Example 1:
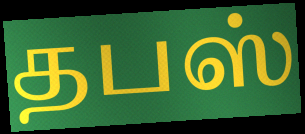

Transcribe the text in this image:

தபஸ்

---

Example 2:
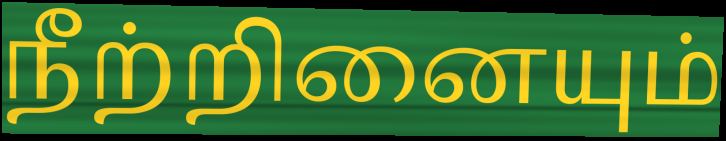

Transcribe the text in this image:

நீற்றினையும்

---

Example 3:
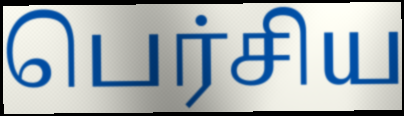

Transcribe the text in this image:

பெர்சிய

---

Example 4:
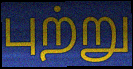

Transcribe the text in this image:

புற்று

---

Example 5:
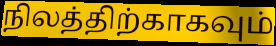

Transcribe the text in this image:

நிலத்திற்காகவும்